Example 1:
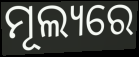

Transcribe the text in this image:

ମୂଲ୍ଯରେ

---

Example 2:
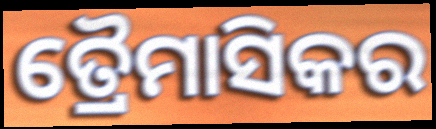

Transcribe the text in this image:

ତ୍ରୈମାସିକର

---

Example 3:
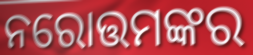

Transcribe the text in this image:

ନରୋତ୍ତମଙ୍କର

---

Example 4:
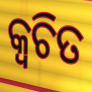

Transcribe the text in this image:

କ୍ୱଚିତ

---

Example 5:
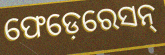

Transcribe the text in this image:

ଫେଡ଼େରେସନ୍